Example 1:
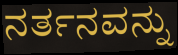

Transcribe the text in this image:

ನರ್ತನವನ್ನು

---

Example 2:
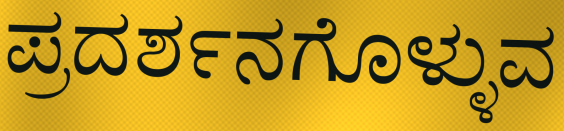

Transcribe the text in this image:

ಪ್ರದರ್ಶನಗೊಳ್ಳುವ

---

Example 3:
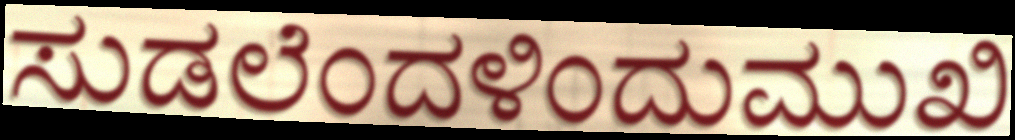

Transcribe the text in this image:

ಸುಡಲೆಂದಳಿಂದುಮುಖಿ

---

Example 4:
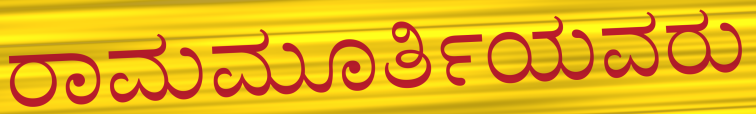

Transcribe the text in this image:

ರಾಮಮೂರ್ತಿಯವರು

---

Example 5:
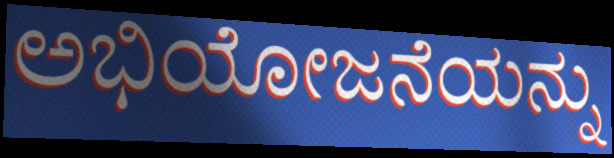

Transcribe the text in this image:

ಅಭಿಯೋಜನೆಯನ್ನು